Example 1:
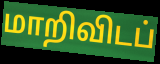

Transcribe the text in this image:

மாறிவிடப்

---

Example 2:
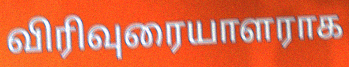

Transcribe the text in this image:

விரிவுரையாளராக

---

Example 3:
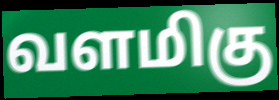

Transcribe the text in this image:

வளமிகு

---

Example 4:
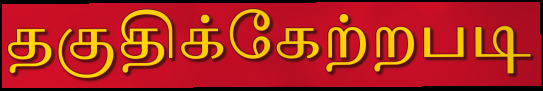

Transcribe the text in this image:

தகுதிக்கேற்றபடி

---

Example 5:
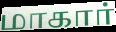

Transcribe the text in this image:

மாகார்